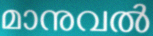
മാനുവൽ